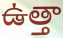
ఉత్తా